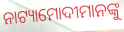
ନାଟ୍ୟାମୋଦୀମାନଙ୍କୁ